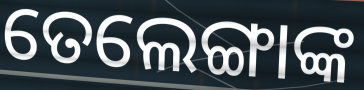
ତେଲେଙ୍ଗାଙ୍କ